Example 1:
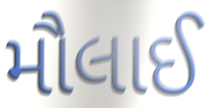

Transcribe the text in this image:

મૌલાઈ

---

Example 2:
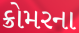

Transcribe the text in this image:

ક્રોમરના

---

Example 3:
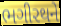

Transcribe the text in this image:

ભગીરથને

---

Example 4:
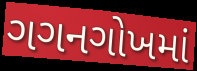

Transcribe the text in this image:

ગગનગોખમાં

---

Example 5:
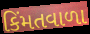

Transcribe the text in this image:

કિંમતવાળા